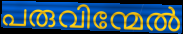
പരുവിന്മേൽ